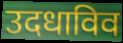
उदधाविव